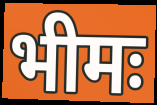
भीमः